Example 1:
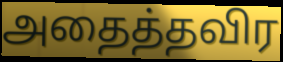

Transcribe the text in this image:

அதைத்தவிர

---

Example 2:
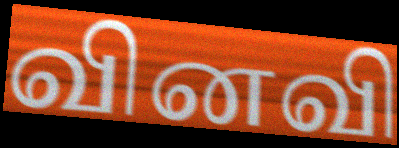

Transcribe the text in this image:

வினவி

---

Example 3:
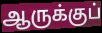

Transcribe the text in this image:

ஆருக்குப்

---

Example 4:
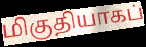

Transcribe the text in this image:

மிகுதியாகப்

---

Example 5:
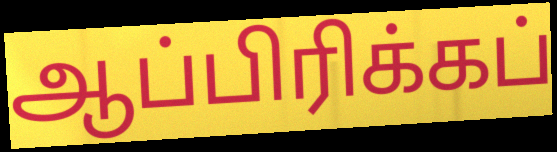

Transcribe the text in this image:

ஆப்பிரிக்கப்